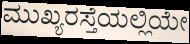
ಮುಖ್ಯರಸ್ತೆಯಲ್ಲಿಯೇ